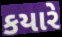
કયારે